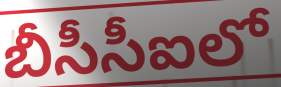
బీసీసీఐలో